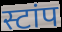
स्टांप